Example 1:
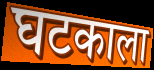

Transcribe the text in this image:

घटकाला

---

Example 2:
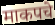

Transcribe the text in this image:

माकपचे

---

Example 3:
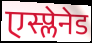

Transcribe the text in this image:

एस्प्लेनेड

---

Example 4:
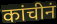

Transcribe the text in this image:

कांचीनं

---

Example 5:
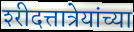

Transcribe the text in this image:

श्रीदत्तात्रेयांच्या